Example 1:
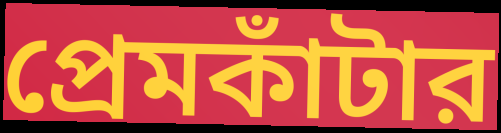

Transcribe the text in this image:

প্রেমকাঁটার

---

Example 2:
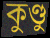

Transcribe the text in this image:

কুণ্ডু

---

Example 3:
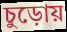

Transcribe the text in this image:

চুড়োয়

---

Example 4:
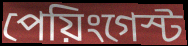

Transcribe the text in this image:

পেয়িংগেস্ট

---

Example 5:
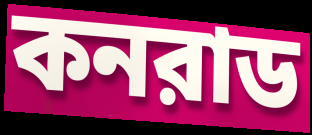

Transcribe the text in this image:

কনরাড